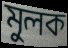
মুলক